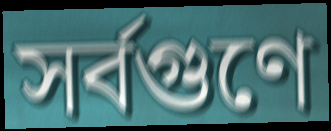
সর্বগুণে